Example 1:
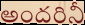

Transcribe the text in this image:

అందరినీ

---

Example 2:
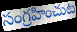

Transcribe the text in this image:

సంగ్రహించుట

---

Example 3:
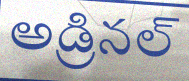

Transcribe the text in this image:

అడ్రినల్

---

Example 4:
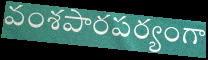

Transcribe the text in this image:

వంశపారపర్యంగా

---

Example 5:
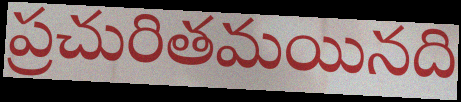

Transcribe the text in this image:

ప్రచురితమయినది